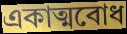
একাত্মবোধ